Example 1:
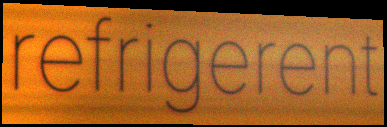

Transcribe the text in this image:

refrigerent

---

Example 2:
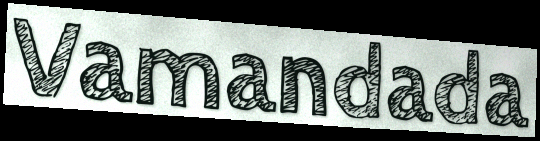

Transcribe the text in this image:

Vamandada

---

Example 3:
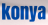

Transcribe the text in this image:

konya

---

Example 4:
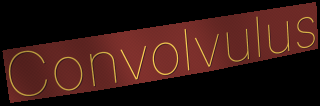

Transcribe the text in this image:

Convolvulus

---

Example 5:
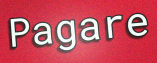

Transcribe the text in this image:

Pagare